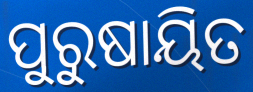
ପୁରୁଷାୟିତ